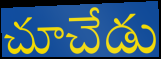
చూచేడు